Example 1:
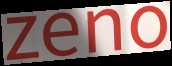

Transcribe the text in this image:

zeno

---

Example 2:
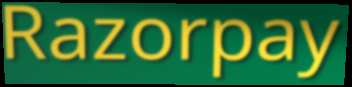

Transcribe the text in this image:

Razorpay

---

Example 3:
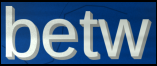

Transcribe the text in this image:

betw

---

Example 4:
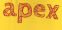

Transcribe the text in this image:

apex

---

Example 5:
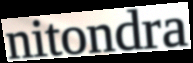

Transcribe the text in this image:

nitondra